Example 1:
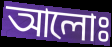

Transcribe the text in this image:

আলোঃ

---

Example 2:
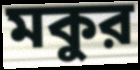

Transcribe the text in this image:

মকুর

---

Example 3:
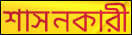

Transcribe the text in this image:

শাসনকারী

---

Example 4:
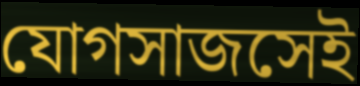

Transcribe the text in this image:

যোগসাজসেই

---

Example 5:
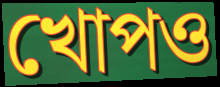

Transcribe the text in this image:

খোপও